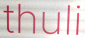
thuli